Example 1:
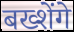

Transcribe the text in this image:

बख्शेंगे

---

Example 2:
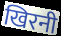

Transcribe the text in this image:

खिरनी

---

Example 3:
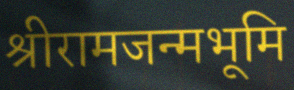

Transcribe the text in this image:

श्रीरामजन्मभूमि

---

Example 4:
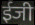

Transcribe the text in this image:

ईजी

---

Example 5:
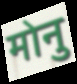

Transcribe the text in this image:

मोनु